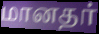
மானதர்